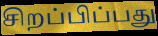
சிறப்பிப்பது